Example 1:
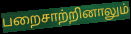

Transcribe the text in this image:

பறைசாற்றினாலும்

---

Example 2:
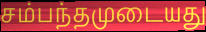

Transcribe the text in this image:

சம்பந்தமுடையது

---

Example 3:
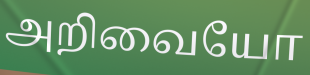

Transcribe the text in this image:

அறிவையோ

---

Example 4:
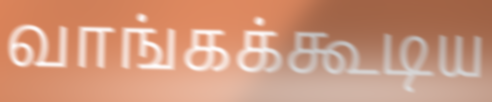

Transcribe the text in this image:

வாங்கக்கூடிய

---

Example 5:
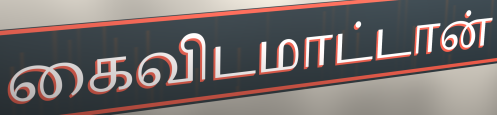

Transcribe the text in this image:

கைவிடமாட்டான்